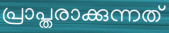
പ്രാപ്തരാക്കുന്നത്